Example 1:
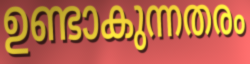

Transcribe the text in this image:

ഉണ്ടാകുന്നതരം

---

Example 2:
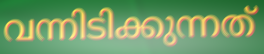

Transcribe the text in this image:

വന്നിടിക്കുന്നത്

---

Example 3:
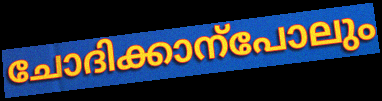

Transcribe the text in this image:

ചോദിക്കാന്പോലും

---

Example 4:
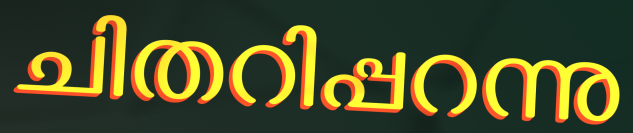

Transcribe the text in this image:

ചിതറിപ്പറന്നു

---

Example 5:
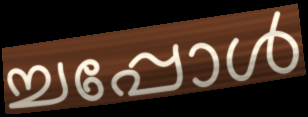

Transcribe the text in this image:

ച്ചപ്പോൾ